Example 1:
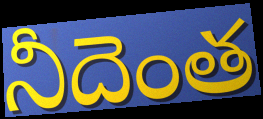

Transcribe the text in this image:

నీదెంత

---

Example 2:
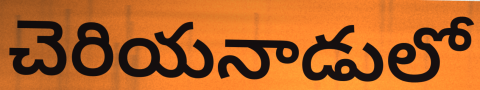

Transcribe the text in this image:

చెరియనాడులో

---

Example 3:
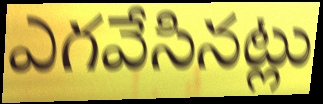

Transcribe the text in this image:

ఎగవేసినట్లు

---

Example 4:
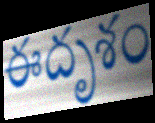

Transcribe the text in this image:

ఈదృశం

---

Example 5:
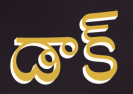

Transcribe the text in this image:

డాక్